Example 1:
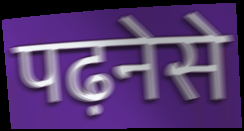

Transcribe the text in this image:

पढ़नेसे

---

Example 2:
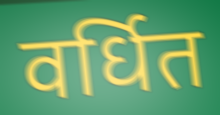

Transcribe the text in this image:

वर्धित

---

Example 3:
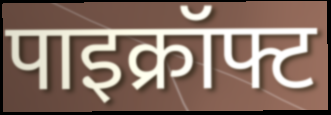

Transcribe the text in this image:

पाइक्रॉफ्ट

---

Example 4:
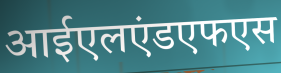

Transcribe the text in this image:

आईएलएंडएफएस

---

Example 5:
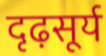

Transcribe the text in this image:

दृढ़सूर्य